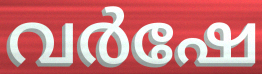
വർഷേ